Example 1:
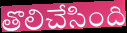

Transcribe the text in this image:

తొలిచేసింది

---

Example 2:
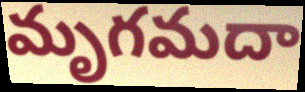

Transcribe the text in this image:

మృగమదా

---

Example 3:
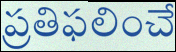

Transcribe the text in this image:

ప్రతిఫలించే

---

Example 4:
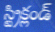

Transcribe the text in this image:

స్ట్రిక్లండ్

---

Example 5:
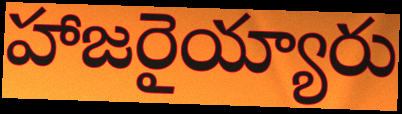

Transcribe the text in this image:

హాజరైయ్యారు